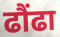
ढौंढा